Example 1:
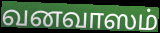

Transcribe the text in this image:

வனவாஸம்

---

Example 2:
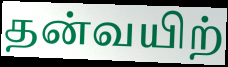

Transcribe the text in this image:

தன்வயிற்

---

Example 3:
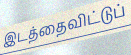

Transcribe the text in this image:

இடத்தைவிட்டுப்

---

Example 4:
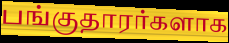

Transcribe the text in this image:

பங்குதாரர்களாக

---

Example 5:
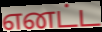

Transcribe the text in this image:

எனட்ட